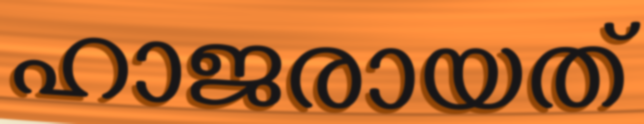
ഹാജരായത്